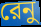
রেনু